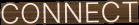
CONNECT